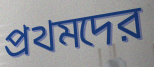
প্রথমদের